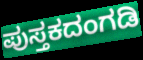
ಪುಸ್ತಕದಂಗಡಿ